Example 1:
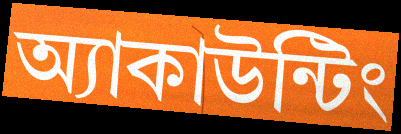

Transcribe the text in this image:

অ্যাকাউন্টিং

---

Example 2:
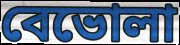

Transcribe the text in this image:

বেভোলা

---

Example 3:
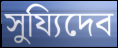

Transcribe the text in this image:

সুয্যিদেব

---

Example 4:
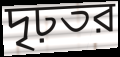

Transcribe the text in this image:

দৃঢ়তর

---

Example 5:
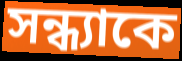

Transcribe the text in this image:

সন্ধ্যাকে